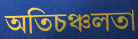
অতিচঞ্চলতা